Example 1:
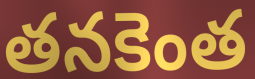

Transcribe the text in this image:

తనకెంత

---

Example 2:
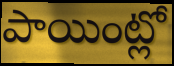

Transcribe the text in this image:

పాయింట్లో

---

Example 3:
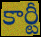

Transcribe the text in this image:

కార్టీ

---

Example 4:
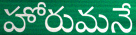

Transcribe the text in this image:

హోరుమనే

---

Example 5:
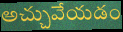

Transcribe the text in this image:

అచ్చువేయడం